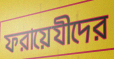
ফরায়েযীদের